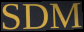
SDM